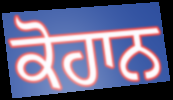
ਕੋਹਾਨ